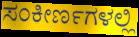
ಸಂಕೀರ್ಣಗಳಲ್ಲಿ